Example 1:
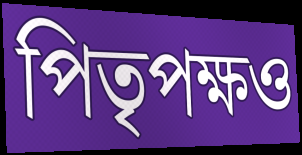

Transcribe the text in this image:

পিতৃপক্ষও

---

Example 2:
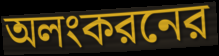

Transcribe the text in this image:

অলংকরনের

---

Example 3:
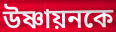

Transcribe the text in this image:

উষ্ণায়নকে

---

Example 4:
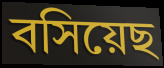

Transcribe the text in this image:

বসিয়েছ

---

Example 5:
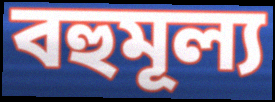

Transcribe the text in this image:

বহুমূল্য